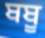
ਬਬੂ